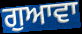
ਗੁਆਵਾ